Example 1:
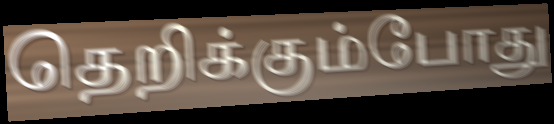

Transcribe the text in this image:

தெறிக்கும்போது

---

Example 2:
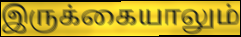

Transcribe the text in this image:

இருக்கையாலும்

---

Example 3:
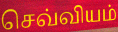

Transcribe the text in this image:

செவ்வியம்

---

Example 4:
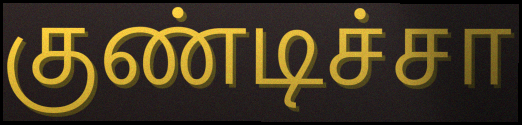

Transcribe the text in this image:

குண்டிச்சா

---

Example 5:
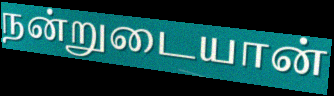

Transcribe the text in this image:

நன்றுடையான்